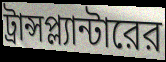
ট্রান্সপ্ল্যান্টারের